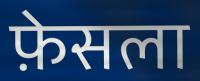
फ़ेसला